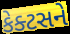
કેક્ટસને